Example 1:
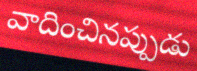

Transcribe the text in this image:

వాదించినప్పుడు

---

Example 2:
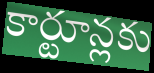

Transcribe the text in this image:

కార్టూన్లకు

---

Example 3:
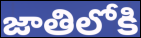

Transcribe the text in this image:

జాతిలోకి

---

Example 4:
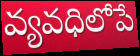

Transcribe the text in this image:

వ్యవధిలోపే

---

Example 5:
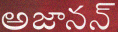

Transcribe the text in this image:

అజానన్